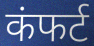
कंफर्ट